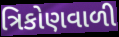
ત્રિકોણવાળી